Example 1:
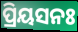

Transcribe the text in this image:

ପ୍ରିୟସନଃ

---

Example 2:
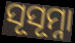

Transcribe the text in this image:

ସୂସୂମ୍ନା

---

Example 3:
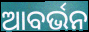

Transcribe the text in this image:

ଆବର୍ଭନ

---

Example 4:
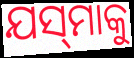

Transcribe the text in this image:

ଯସ୍‌ମାକୁ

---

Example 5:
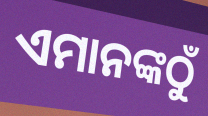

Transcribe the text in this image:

ଏମାନଙ୍କଠୁଁ